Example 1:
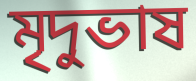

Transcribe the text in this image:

মৃদুভাষ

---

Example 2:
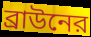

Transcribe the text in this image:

ব্রাউনের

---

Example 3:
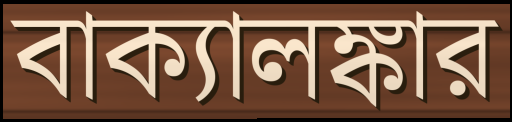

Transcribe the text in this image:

বাক্যালঙ্কার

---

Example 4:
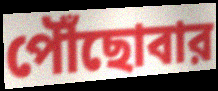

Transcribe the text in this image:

পৌঁছোবার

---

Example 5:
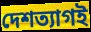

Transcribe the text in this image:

দেশত্যাগই